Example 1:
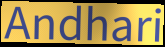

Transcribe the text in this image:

Andhari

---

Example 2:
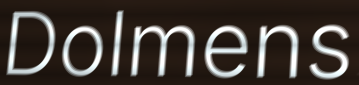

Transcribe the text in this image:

Dolmens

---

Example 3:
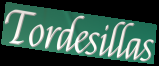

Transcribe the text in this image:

Tordesillas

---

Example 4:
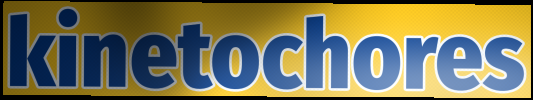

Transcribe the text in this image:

kinetochores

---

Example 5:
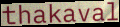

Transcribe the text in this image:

thakaval